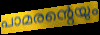
പാമരന്റെയും